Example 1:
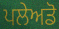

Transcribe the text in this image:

ਪਲੇਅਡੋ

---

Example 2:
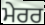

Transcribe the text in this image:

ਮੇਰਰ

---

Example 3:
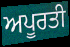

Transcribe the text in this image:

ਅਪੂਰਤੀ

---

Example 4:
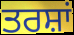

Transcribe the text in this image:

ਤਰਸ਼ਾਂ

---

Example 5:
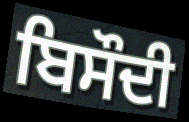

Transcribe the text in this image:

ਬਿਸੌਦੀ